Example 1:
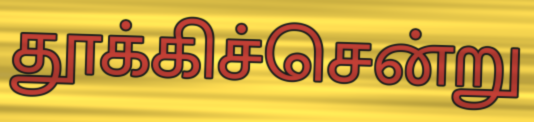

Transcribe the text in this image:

தூக்கிச்சென்று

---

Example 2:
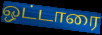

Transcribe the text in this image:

ஒட்டாரை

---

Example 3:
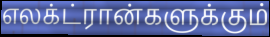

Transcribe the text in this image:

எலக்ட்ரான்களுக்கும்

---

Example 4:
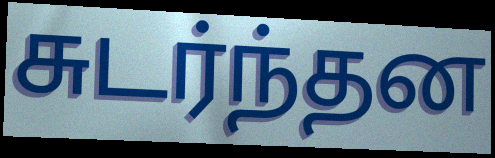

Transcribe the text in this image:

சுடர்ந்தன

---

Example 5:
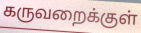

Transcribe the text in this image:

கருவறைக்குள்